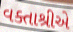
વક્તાશ્રીએ